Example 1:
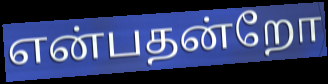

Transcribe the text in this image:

என்பதன்றோ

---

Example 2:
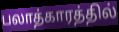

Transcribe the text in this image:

பலாத்காரத்தில்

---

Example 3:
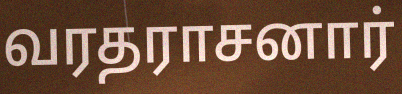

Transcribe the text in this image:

வரதராசனார்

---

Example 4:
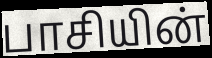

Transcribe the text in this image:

பாசியின்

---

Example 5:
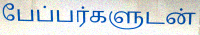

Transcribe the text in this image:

பேப்பர்களுடன்